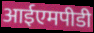
आईएमपीडी